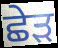
ਛੇੜ